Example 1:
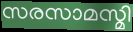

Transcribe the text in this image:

സരസാമസ്മി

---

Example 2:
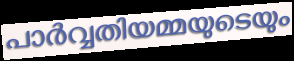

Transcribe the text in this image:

പാർവ്വതിയമ്മയുടെയും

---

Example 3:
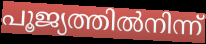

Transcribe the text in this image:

പൂജ്യത്തിൽനിന്ന്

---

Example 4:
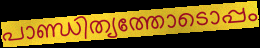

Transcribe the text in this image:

പാണ്ഡിത്യത്തോടൊപ്പം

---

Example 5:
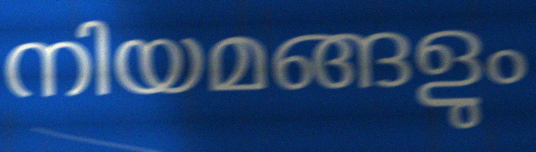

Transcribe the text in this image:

നിയമങ്ങളും